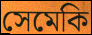
সেমেকি